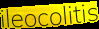
ileocolitis